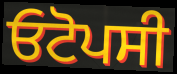
ਓਟੋਪਸੀ